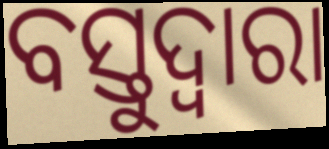
ବସ୍ତୁଦ୍ଵାରା